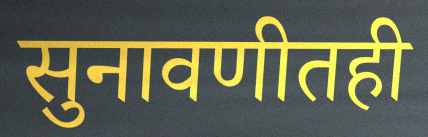
सुनावणीतही